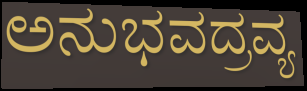
ಅನುಭವದ್ರವ್ಯ